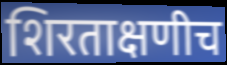
शिरताक्षणीच